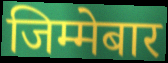
जिम्मेबार